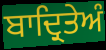
ਬਾਦ੍ਰਿਤੇਅੰ